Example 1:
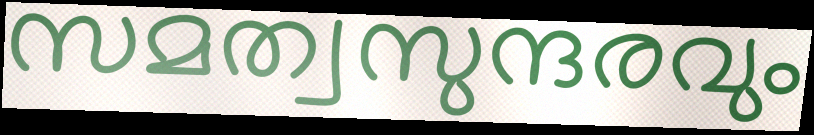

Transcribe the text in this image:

സമത്വസുന്ദരവും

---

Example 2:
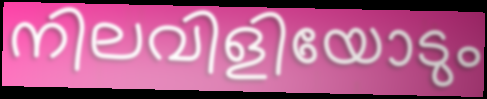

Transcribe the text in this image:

നിലവിളിയോടും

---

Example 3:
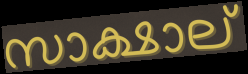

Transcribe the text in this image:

സാക്ഷാല്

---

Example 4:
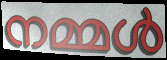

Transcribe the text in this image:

നമ്മൾ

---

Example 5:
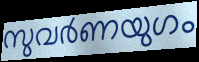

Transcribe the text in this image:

സുവർണയുഗം